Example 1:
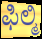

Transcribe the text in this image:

ಫಿಲ್ಮಿ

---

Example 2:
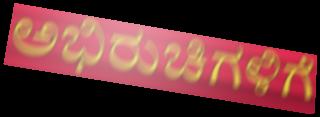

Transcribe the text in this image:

ಅಭಿರುಚಿಗಳಿಗೆ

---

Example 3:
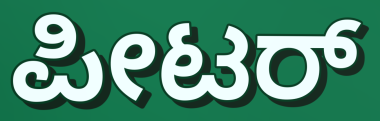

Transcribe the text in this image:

ಪೀಟರ್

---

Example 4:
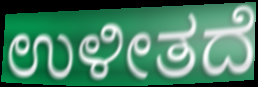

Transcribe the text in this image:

ಉಳೀತದೆ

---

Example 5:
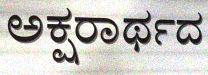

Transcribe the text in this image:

ಅಕ್ಷರಾರ್ಥದ